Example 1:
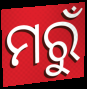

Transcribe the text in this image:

ମରୁଁ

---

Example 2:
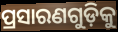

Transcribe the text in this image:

ପ୍ରସାରଣଗୁଡ଼ିକୁ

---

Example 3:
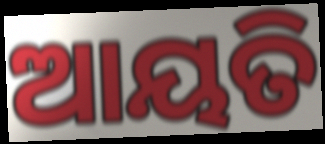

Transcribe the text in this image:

ଆୟତି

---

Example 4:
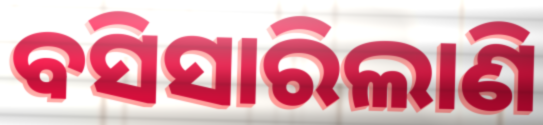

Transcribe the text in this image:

ବସିସାରିଲାଣି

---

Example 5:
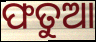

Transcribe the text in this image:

ଫତୁଆ